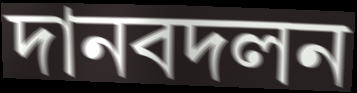
দানবদলন